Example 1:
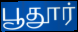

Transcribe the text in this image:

பூதூர்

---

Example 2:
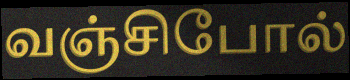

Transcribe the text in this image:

வஞ்சிபோல்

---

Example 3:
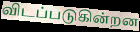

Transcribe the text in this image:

விடப்படுகின்றன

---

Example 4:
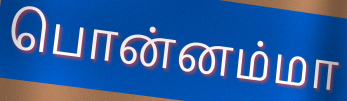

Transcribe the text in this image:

பொன்னம்மா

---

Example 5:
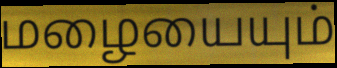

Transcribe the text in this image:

மழையையும்